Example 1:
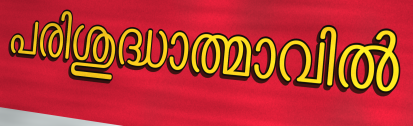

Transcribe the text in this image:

പരിശുദ്ധാത്മാവിൽ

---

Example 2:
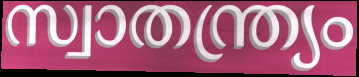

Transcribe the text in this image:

സ്വാതന്ത്ര്യം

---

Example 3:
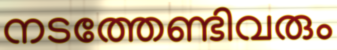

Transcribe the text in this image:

നടത്തേണ്ടിവരും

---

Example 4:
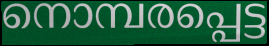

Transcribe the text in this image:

നൊമ്പരപ്പെട്ട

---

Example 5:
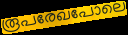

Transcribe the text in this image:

രൂപരേഖപോലെ